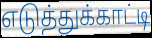
எடுத்துக்காட்டி